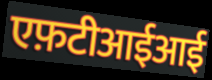
एफ़टीआईआई